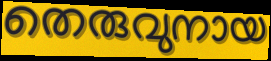
തെരുവുനായ